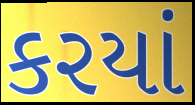
કરયાં